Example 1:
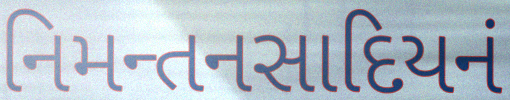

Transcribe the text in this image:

નિમન્તનસાદિયનં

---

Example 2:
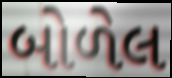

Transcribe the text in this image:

બોળેલ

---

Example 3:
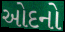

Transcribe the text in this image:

ઓદનો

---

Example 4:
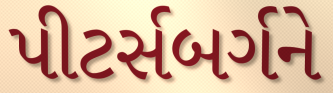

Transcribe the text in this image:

પીટર્સબર્ગને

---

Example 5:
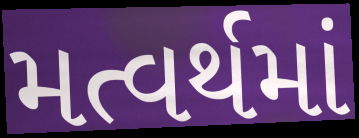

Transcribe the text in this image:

મત્વર્થમાં